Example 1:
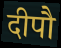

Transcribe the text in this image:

दीपौ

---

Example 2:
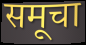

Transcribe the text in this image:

समूचा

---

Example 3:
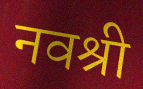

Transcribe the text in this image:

नवश्री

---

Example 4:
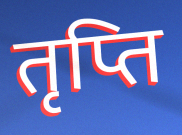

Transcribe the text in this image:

तृप्ति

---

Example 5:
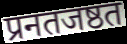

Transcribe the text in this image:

प्रनतजष्ठत